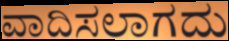
ವಾದಿಸಲಾಗದು